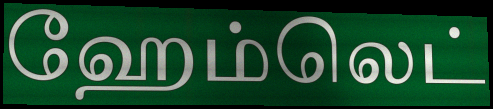
ஹேம்லெட்